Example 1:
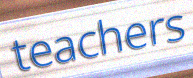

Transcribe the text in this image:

teachers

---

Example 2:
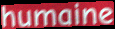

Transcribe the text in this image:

humaine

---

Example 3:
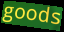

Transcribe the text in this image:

goods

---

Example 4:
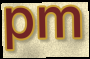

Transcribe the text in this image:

pm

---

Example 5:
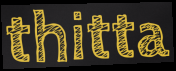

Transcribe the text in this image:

thitta